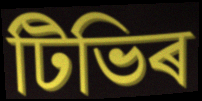
টিভিৰ